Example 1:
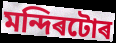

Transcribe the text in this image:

মন্দিৰটোৰ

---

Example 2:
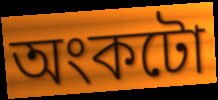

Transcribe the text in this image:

অংকটো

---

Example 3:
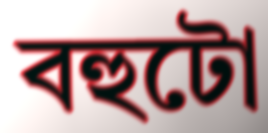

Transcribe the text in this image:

বহুটো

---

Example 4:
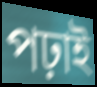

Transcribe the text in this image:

পঢ়াই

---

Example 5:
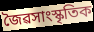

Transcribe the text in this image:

জৈৱসাংস্কৃতিক